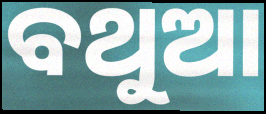
ବଥୁଆ